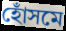
হোঁসমে